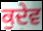
ਕੁਦੇਵ